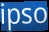
ipso